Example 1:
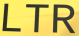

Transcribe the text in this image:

LTR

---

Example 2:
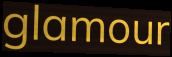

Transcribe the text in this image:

glamour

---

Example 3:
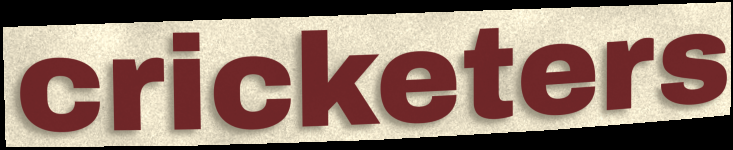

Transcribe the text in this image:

cricketers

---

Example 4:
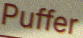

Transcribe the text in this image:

Puffer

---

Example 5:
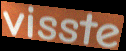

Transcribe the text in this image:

visste